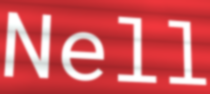
Nell